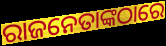
ରାଜନେତାଙ୍କଠାରେ